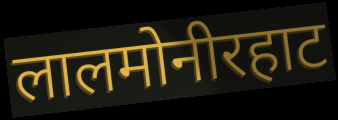
लालमोनीरहाट